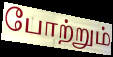
போற்றும்